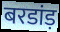
बरडांड़